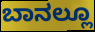
ಬಾನಲ್ಲೂ